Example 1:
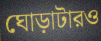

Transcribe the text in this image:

ঘোড়াটারও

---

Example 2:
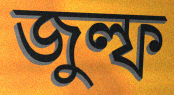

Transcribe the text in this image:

জুল্ফ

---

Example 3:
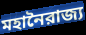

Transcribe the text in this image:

মহানৈরাজ্য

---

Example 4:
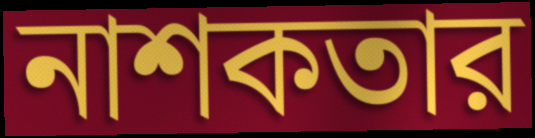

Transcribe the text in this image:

নাশকতার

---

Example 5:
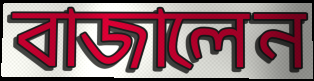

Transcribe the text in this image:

বাজালেন